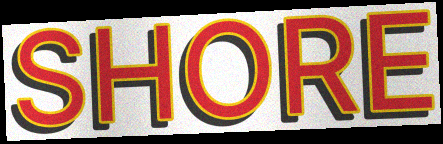
SHORE